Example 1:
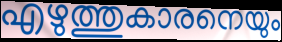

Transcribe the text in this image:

എഴുത്തുകാരനെയും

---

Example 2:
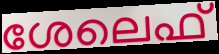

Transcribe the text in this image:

ശേലെഫ്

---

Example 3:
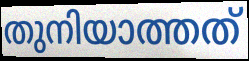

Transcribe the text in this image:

തുനിയാത്തത്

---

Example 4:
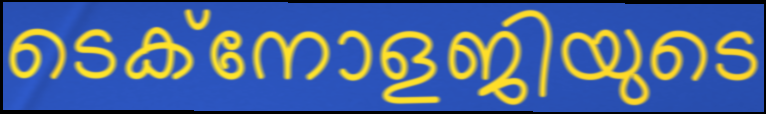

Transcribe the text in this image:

ടെക്നോളജിയുടെ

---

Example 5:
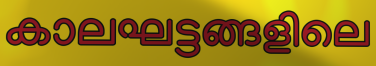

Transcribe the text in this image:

കാലഘട്ടങ്ങളിലെ